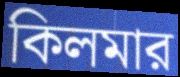
কিলমার